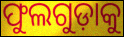
ଫୁଲଗୁଡ଼ାକୁ